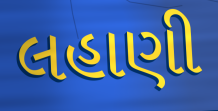
લહાણી